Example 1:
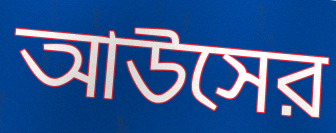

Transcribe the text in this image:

আউসের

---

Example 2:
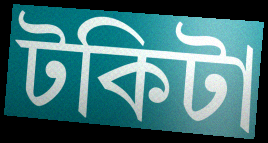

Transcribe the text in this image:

টকিটা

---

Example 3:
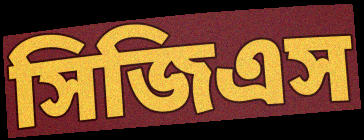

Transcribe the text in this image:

সিজিএস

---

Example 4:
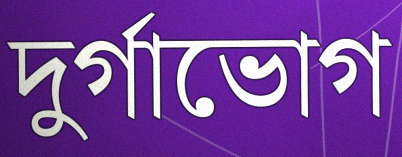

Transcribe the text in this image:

দুর্গাভোগ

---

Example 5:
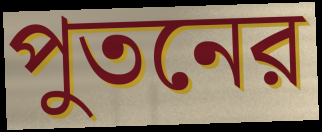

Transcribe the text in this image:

পুতনের